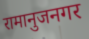
रामानुजनगर